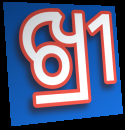
ଖ୍ରୀ